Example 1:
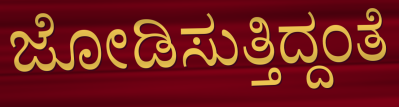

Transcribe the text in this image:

ಜೋಡಿಸುತ್ತಿದ್ದಂತೆ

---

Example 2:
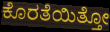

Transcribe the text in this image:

ಕೊರತೆಯಿತ್ತೋ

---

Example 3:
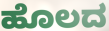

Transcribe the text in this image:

ಹೊಲದ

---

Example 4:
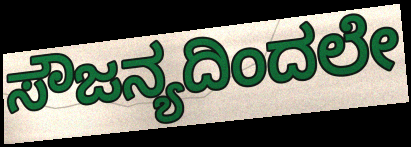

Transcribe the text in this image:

ಸೌಜನ್ಯದಿಂದಲೇ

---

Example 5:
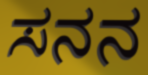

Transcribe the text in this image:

ಸನನ